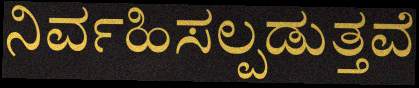
ನಿರ್ವಹಿಸಲ್ಪಡುತ್ತವೆ